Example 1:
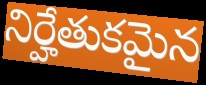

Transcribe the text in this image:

నిర్హేతుకమైన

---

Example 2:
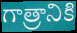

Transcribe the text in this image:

గాత్రానికి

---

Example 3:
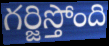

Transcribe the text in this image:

గర్జిస్తోంది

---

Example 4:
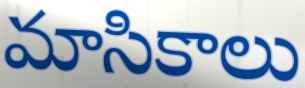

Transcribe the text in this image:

మాసికాలు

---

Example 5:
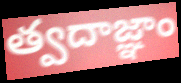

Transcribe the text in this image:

త్వదాజ్ఞాం